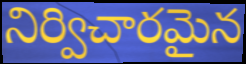
నిర్విచారమైన